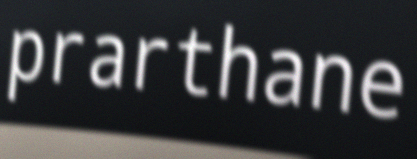
prarthane